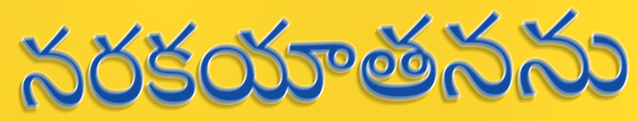
నరకయాతనను